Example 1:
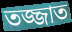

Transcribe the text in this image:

তজ্জাত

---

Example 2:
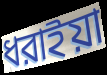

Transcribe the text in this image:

ধরাইয়া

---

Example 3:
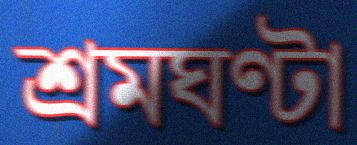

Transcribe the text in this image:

শ্রমঘণ্টা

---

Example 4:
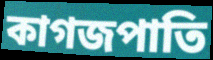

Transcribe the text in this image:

কাগজপাতি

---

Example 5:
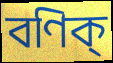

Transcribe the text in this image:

বণিক্